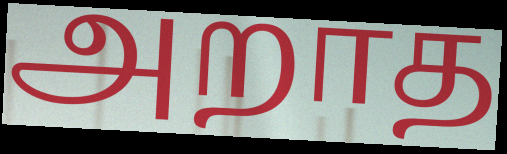
அறாத